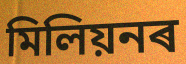
মিলিয়নৰ